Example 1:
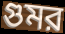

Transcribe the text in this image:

গুমর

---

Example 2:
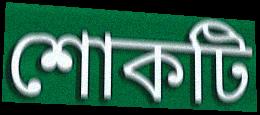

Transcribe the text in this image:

শোকটি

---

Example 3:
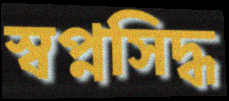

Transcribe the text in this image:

স্বপ্নসিদ্ধ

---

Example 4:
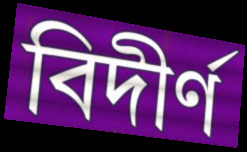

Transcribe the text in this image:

বিদীর্ণ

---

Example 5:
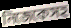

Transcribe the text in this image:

নিজেকেসহ